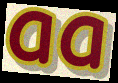
aa